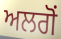
ਅਲਗੋਂ